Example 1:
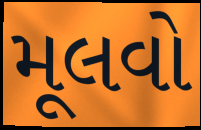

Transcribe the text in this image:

મૂલવો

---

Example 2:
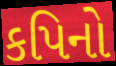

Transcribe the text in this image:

કપિનો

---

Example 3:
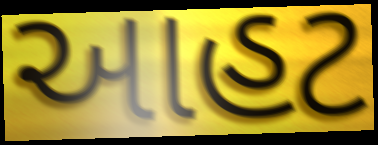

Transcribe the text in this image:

આહટ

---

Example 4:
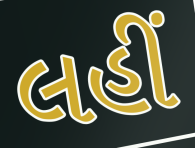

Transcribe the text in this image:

લહીં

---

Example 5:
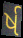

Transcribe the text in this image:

ર્ષ